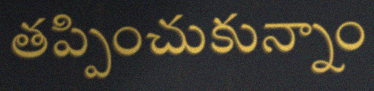
తప్పించుకున్నాం